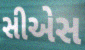
સીએસ